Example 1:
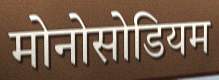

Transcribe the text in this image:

मोनोसोडियम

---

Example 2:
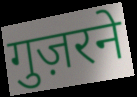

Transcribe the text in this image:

गुज़रने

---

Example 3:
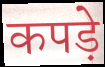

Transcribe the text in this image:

कपड़े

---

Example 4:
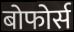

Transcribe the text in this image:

बोफोर्स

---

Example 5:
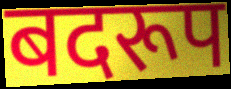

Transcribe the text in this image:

बदरूप